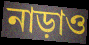
নাড়াও